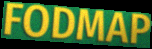
FODMAP